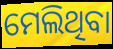
ମେଲିଥିବା